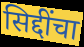
सिद्दींचा